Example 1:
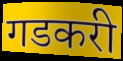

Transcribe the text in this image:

गडकरी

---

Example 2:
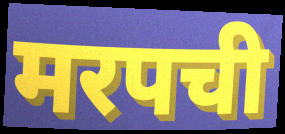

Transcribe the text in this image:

मरपची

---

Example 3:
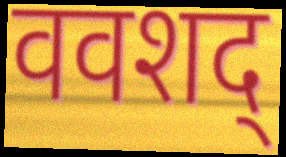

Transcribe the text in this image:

ववशद्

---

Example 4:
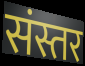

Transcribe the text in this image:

संस्तर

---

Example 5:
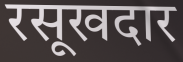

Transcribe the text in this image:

रसूखदार